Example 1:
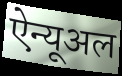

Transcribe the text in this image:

ऐन्यूअल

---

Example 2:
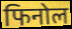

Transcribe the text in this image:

फिनोल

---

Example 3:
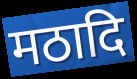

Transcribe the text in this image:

मठादि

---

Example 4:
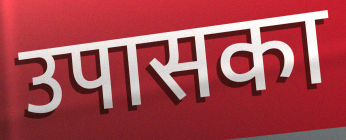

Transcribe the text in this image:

उपासका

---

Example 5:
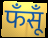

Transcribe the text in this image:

फँसूँ